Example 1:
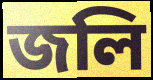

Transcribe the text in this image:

জলি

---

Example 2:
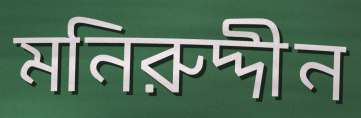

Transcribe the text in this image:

মনিরুদ্দীন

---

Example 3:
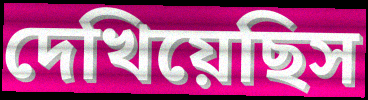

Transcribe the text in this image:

দেখিয়েছিস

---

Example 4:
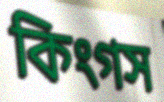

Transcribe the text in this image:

কিংগস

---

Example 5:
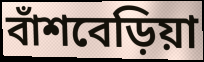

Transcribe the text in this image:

বাঁশবেড়িয়া